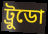
ট্রুডো